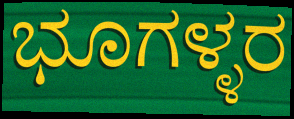
ಭೂಗಳ್ಳರ